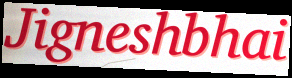
Jigneshbhai